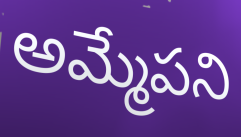
అమ్మేపని